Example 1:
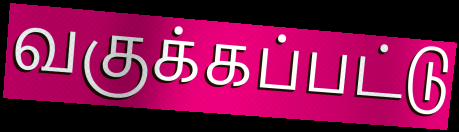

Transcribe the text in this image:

வகுக்கப்பட்டு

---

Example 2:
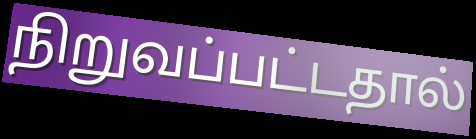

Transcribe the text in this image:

நிறுவப்பட்டதால்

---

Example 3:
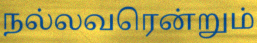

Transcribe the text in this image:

நல்லவரென்றும்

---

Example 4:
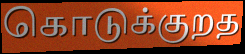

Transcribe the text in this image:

கொடுக்குறத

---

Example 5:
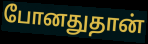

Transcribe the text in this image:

போனதுதான்